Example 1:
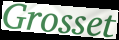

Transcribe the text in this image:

Grosset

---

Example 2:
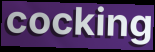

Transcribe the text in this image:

cocking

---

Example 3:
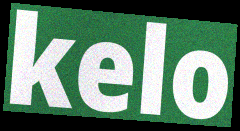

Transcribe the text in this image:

kelo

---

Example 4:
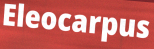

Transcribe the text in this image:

Eleocarpus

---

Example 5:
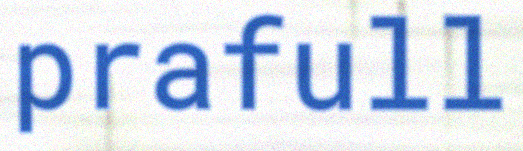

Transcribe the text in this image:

prafull